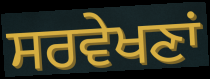
ਸਰਵੇਖਣਾਂ